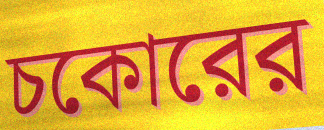
চকোরের